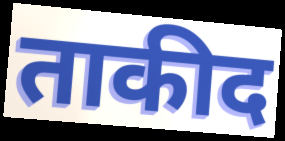
ताकीद